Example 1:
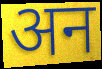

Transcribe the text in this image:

अन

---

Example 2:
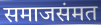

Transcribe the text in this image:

समाजसंमत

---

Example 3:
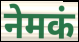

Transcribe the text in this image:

नेमकं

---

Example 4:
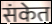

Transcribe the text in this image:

संकेत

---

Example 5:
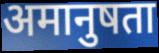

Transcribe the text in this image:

अमानुषता